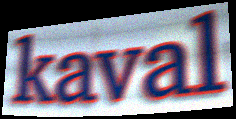
kaval